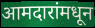
आमदारांमधून